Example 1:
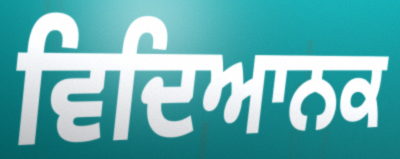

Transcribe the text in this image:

ਵਿਦਿਆਨਕ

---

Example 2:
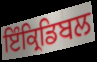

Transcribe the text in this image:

ਇੰਕ੍ਰਿਡਿਬਲ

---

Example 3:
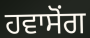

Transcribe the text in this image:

ਹਵਾਸੋਂਗ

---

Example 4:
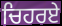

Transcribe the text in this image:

ਚਿਹਰਏ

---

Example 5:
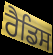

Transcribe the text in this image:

ਰੈਡਿਸ